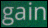
gain